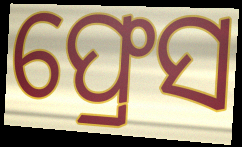
ଫ୍ରେସ